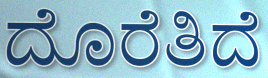
ದೊರೆತಿದೆ